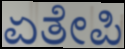
ಏತೇಪಿ